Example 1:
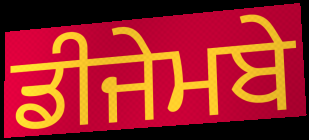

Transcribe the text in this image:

ਡੀਜੇਮਬੇ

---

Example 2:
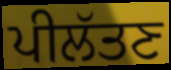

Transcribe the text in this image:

ਪੀਲੱਤਣ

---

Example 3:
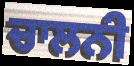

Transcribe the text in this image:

ਚਾਲਨੀ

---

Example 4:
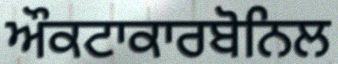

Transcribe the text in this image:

ਔਕਟਾਕਾਰਬੋਨਿਲ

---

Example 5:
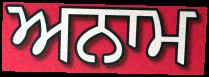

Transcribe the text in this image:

ਅਨਾਮ